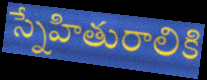
స్నేహితురాలికి